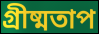
গ্রীষ্মতাপ